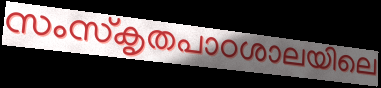
സംസ്കൃതപാഠശാലയിലെ